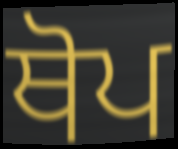
ਥੋਪ